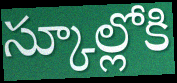
స్కూల్లోకి